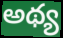
అథ్య